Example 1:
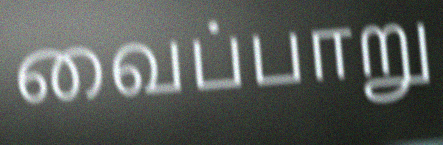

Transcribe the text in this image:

வைப்பாறு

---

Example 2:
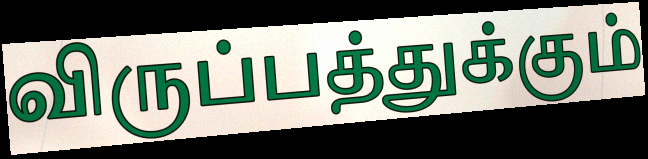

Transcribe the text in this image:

விருப்பத்துக்கும்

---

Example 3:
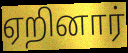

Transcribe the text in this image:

ஏறினார்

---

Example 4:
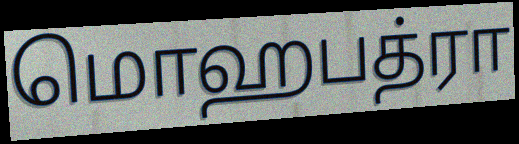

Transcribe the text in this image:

மொஹபத்ரா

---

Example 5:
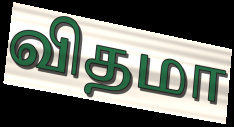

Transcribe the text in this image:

விதமா